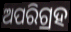
ଅପରିଗ୍ରହ